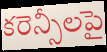
కరెన్సీలపై